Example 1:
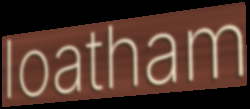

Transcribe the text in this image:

Ioatham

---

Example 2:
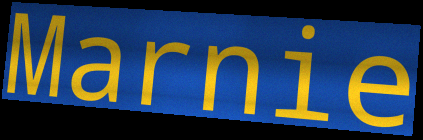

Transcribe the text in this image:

Marnie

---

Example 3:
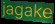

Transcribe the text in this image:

jagake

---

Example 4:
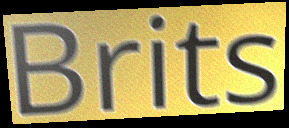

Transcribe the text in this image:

Brits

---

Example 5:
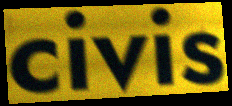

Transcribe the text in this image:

civis